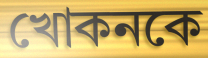
খোকনকে